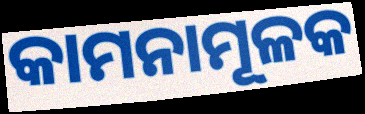
କାମନାମୂଳକ